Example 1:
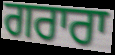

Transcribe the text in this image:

ਗਰਾਰਾ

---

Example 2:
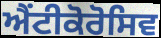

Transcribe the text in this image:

ਐਂਟੀਕੋਰੋਸਿਵ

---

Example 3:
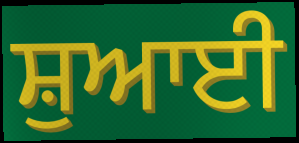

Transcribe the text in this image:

ਸ਼ੁਆਈ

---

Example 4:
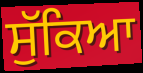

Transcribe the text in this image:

ਸੁੱਕਿਆ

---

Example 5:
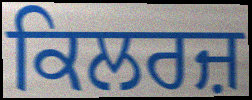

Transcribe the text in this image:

ਕਿਲਰਜ਼